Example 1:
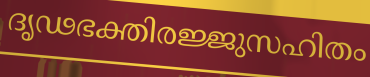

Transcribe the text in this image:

ദൃഢഭക്തിരജ്ജുസഹിതം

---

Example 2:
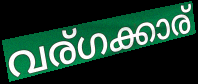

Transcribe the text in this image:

വര്ഗക്കാര്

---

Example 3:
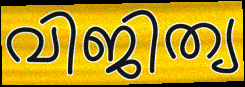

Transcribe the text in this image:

വിജിത്യ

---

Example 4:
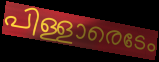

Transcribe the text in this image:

പിള്ളാരെടേം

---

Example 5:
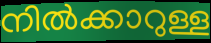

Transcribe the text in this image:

നിൽക്കാറുള്ള